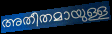
അതീതമായുള്ള